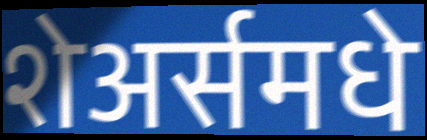
शेअर्समधे